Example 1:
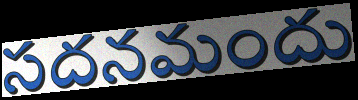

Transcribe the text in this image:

సదనమందు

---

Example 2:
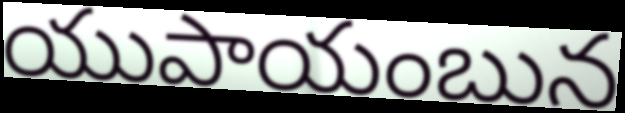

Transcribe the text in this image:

యుపాయంబున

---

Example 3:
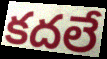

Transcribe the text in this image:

కదలే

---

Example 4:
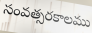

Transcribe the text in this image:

సంవత్సరకాలము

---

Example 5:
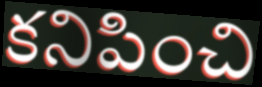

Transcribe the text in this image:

కనిపించి